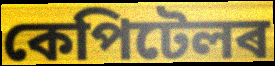
কেপিটেলৰ